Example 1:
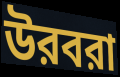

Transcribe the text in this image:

উরবরা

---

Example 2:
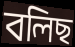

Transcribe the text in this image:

বলিছ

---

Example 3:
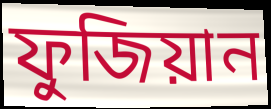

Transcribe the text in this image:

ফুজিয়ান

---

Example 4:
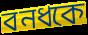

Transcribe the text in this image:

বনধকে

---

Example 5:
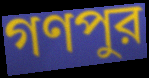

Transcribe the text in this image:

গণপুর